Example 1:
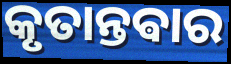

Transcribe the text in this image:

କୃତାନ୍ତଵାର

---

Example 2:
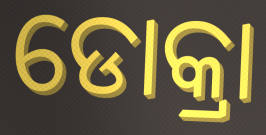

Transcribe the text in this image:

ଡୋକ୍ରା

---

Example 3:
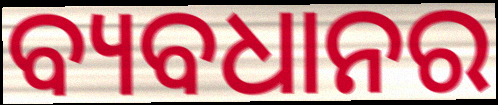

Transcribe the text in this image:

ବ୍ୟବଧାନର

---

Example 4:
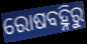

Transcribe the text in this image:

ରୋଷବହ୍ନିରୁ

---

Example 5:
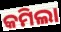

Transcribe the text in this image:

କମିଲା